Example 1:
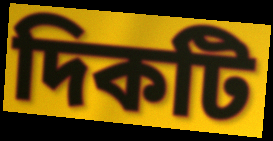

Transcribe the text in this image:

দিকটি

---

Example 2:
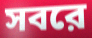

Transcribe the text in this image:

সবরে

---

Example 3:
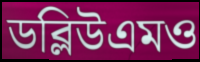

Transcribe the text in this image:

ডব্লিউএমও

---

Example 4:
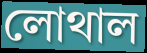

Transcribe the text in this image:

লোথাল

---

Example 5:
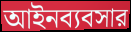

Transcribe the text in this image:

আইনব্যবসার